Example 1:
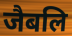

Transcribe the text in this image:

जैबलि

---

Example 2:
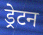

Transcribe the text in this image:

ड्रेटन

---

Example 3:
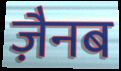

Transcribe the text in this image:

ज़ैनब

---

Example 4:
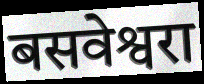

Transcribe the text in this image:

बसवेश्वरा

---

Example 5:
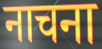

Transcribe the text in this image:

नाचना